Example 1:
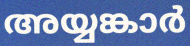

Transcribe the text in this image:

അയ്യങ്കാർ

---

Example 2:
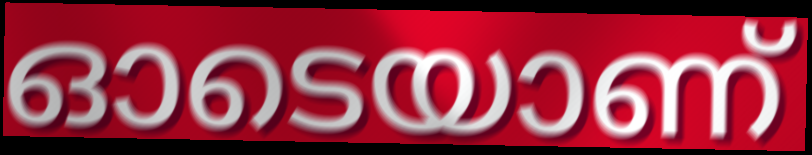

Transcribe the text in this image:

ഓടെയാണ്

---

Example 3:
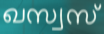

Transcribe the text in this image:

ഖസ്വസ്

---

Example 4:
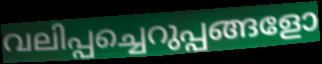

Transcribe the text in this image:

വലിപ്പച്ചെറുപ്പങ്ങളോ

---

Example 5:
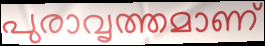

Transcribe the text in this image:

പുരാവൃത്തമാണ്